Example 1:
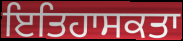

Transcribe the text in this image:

ਇਤਿਹਾਸਕਤਾ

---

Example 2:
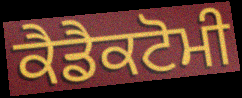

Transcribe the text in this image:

ਕੈਡੈਕਟੋਮੀ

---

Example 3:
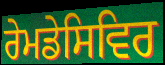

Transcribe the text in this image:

ਰੇਮਡੇਸਿਵਿਰ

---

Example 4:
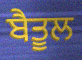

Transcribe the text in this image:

ਬੈਤੂਲ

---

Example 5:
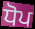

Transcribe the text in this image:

ਧੋਪ